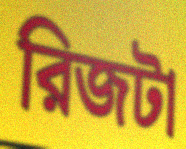
রিজটা